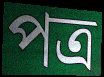
পত্র